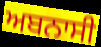
ਅਬਨਾਸੀ